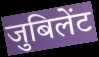
जुबिलेंट